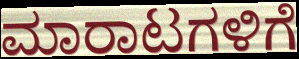
ಮಾರಾಟಗಳಿಗೆ